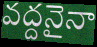
వద్దనైనా